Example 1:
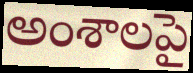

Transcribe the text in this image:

అంశాలపై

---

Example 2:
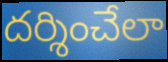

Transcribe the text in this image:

దర్శించేలా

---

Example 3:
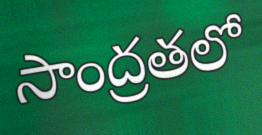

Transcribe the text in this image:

సాంద్రతలో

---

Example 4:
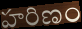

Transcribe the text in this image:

హరిణం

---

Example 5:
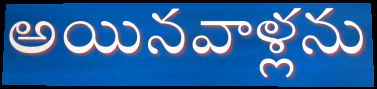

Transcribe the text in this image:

అయినవాళ్లను